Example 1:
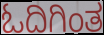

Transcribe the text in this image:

ಓದಿಗಿಂತ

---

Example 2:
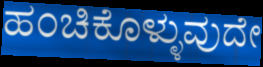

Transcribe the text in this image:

ಹಂಚಿಕೊಳ್ಳುವುದೇ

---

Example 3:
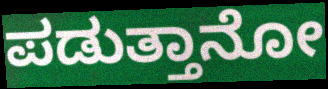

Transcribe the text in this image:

ಪಡುತ್ತಾನೋ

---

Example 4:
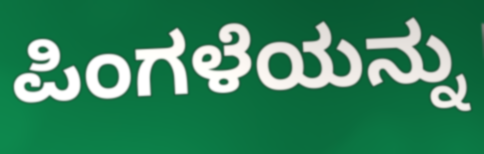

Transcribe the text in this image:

ಪಿಂಗಳೆಯನ್ನು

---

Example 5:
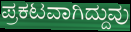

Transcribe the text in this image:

ಪ್ರಕಟವಾಗಿದ್ದುವು